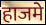
हाजमे